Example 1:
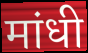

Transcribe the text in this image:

मांधी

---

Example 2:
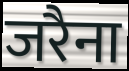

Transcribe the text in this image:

जरैना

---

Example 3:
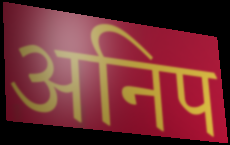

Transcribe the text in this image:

अनिप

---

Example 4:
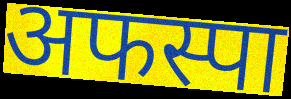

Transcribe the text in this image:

अफस्पा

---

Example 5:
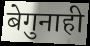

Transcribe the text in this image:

बेगुनाही